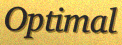
Optimal